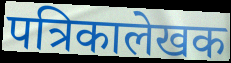
पत्रिकालेखक